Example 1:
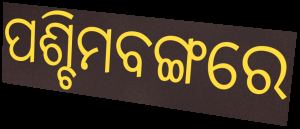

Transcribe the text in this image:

ପଶ୍ଚିମବଙ୍ଗରେ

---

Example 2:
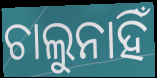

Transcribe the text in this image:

ଚାଲୁନାହିଁ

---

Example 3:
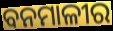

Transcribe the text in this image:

ବନମାଳୀର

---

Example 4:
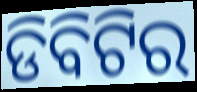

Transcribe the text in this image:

ଡିବିଟିର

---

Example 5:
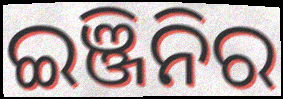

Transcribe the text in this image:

ଇଞ୍ଜିନିର